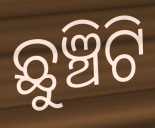
ଛୁଞ୍ଚିଟି